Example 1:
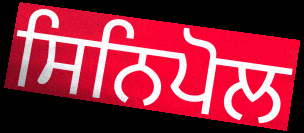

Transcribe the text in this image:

ਸਿਨਿਪੋਲ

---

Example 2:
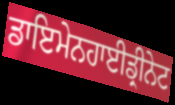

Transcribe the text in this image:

ਡਾਇਮੇਨਹਾਈਡ੍ਰੀਨੇਟ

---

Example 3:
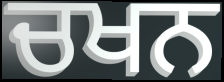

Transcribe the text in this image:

ਚਖਨ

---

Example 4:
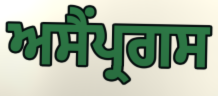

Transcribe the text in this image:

ਅਸੈਂਪ੍ਰਗਸ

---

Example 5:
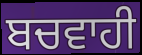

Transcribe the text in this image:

ਬਚਵਾਹੀ